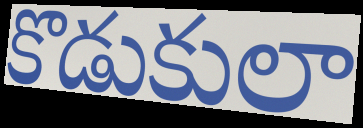
కొడుకులా